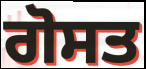
ਗੋਸਤ